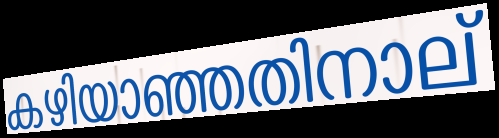
കഴിയാഞ്ഞതിനാല്